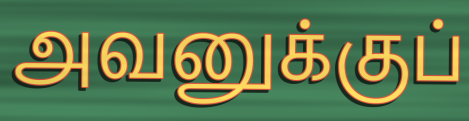
அவனுக்குப்